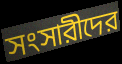
সংসারীদের